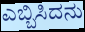
ಎಬ್ಬಿಸಿದನು